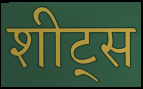
शीट्स